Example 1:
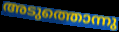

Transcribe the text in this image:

അടുത്തൊന്നു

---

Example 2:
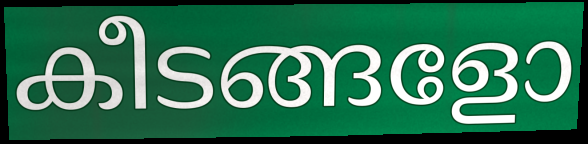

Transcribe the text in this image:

കീടങ്ങളോ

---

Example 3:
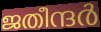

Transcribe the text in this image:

ജതീന്ദർ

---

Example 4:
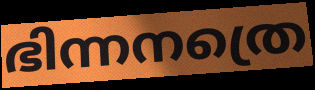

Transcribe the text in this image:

ഭിന്നനത്രെ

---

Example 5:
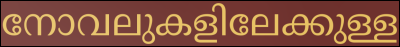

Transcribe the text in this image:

നോവലുകളിലേക്കുള്ള